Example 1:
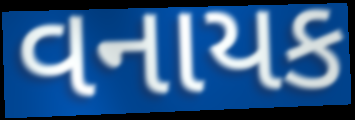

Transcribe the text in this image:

વનાયક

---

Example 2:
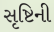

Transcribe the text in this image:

સૃષ્ટિની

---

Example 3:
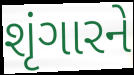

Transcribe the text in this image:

શૃંગારને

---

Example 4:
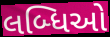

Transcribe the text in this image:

લબ્ધિઓ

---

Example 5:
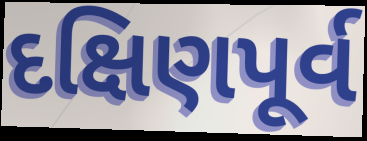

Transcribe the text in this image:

દક્ષિણપૂર્વ